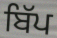
ਬਿੱਪ